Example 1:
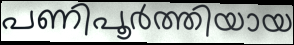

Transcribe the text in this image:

പണിപൂർത്തിയായ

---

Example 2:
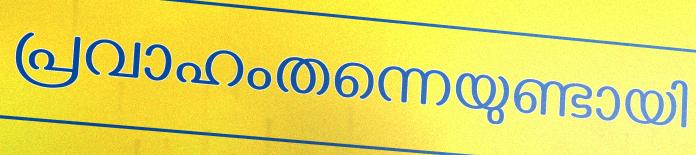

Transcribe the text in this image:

പ്രവാഹംതന്നെയുണ്ടായി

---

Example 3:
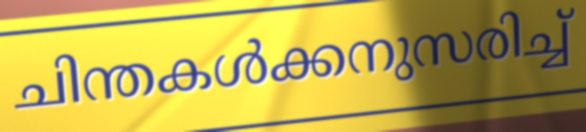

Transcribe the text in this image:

ചിന്തകൾക്കനുസരിച്ച്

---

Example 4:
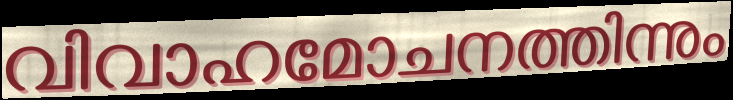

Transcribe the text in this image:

വിവാഹമോചനത്തിന്നും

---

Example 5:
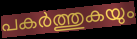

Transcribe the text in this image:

പകർത്തുകയും